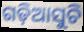
ଗଡ଼ିଆସୁଚି